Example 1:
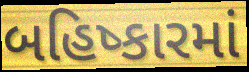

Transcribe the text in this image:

બહિષ્કારમાં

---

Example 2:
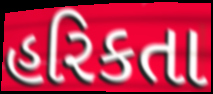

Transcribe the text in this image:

હરિકતા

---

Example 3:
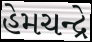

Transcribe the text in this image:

હેમચન્દ્રે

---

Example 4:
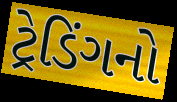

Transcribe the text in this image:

ટ્રેડિંગનો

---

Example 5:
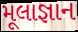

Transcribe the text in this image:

મૂલાજ્ઞાન